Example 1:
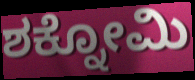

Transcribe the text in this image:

ಶಕ್ನೋಮಿ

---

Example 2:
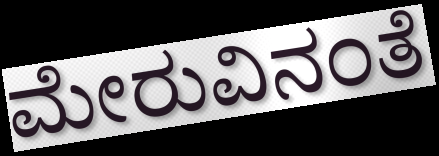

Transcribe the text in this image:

ಮೇರುವಿನಂತೆ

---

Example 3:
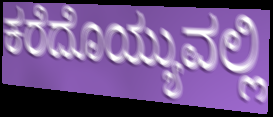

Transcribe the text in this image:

ಕರೆದೊಯ್ಯುವಲ್ಲಿ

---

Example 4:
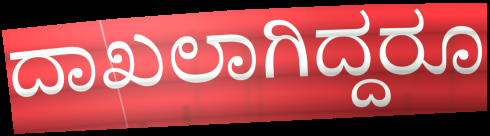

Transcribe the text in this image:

ದಾಖಲಾಗಿದ್ದರೂ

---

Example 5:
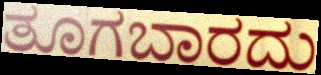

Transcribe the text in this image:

ತೂಗಬಾರದು